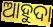
ଆହୁଦା